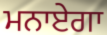
ਮਨਾਏਗਾ